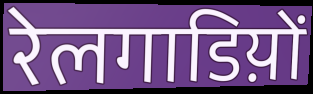
रेलगाडिय़ों